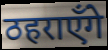
ठहराएँगे